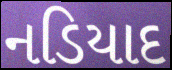
નડિયાદ